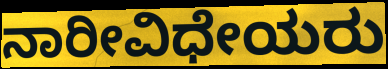
ನಾರೀವಿಧೇಯರು